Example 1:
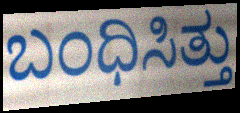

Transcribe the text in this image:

ಬಂಧಿಸಿತ್ತು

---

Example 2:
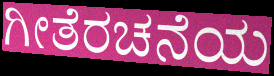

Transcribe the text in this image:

ಗೀತೆರಚನೆಯ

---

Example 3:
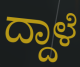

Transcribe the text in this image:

ದ್ದಾಳೆ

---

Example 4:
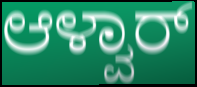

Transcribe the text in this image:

ಆಳ್ವಾರ್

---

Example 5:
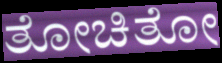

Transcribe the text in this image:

ತೋಚಿತೋ